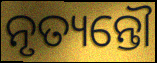
ନୃତ୍ୟନ୍ତୌ